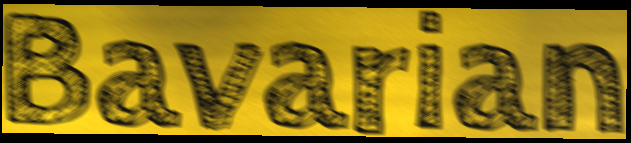
Bavarian